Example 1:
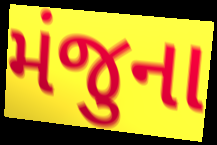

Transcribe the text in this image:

મંજુના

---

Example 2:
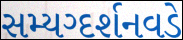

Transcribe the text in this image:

સમ્યગ્દર્શનવડે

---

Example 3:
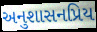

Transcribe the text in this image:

અનુશાસનપ્રિય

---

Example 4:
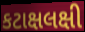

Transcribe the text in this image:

કટાક્ષલક્ષી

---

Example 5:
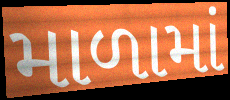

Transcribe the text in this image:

માળામાં